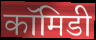
कॉमिडी